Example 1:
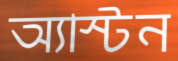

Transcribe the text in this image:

অ্যাস্টন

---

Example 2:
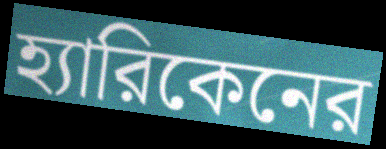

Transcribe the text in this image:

হ্যারিকেনের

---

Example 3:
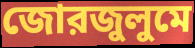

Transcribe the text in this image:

জোরজুলুমে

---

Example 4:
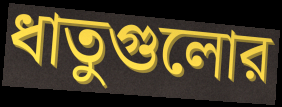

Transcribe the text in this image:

ধাতুগুলোর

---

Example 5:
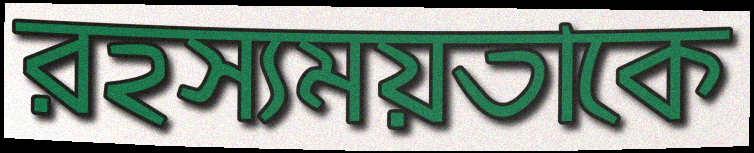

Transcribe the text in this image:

রহস্যময়তাকে